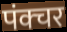
पंक्‍चर